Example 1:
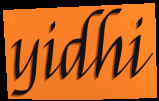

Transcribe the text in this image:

yidhi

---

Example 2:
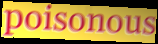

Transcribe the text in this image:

poisonous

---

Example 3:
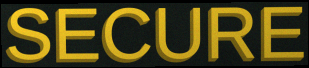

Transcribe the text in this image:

SECURE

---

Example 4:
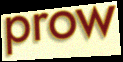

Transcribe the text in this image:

prow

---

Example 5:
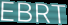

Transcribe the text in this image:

EBRT